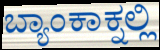
ಬ್ಯಾಂಕಾಕ್ನಲ್ಲಿ